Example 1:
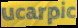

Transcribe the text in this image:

ucarpic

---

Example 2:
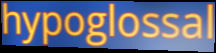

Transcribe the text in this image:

hypoglossal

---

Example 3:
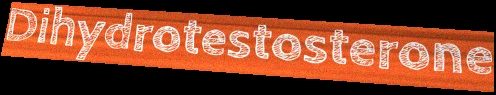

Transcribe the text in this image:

Dihydrotestosterone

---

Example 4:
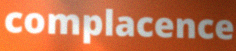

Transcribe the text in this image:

complacence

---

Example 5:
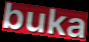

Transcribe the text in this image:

buka